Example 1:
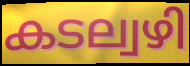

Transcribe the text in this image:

കടല്വഴി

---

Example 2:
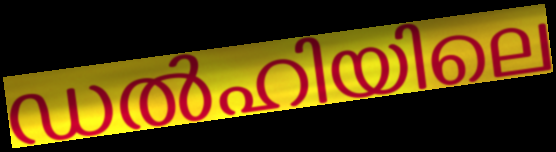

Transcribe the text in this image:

ഡൽഹിയിലെ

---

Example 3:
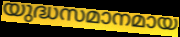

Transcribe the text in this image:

യുദ്ധസമാനമായ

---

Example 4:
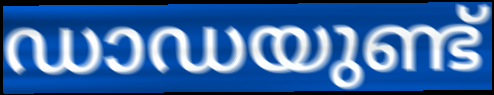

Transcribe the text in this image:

ഡാഡയുണ്ട്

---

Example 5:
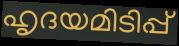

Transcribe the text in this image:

ഹൃദയമിടിപ്പ്